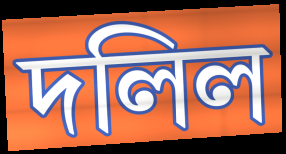
দলিল